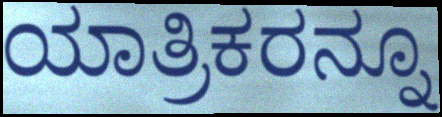
ಯಾತ್ರಿಕರನ್ನೂ